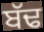
ਬੱਢ